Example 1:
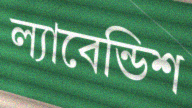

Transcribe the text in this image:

ল্যাবেন্ডিশ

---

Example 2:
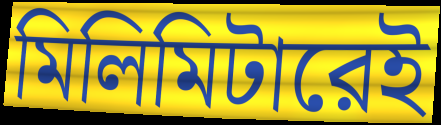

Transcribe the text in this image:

মিলিমিটারেই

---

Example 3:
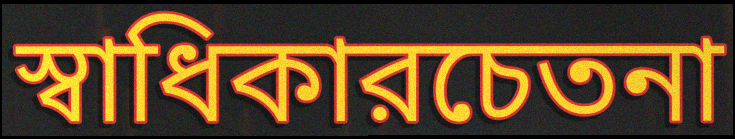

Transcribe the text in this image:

স্বাধিকারচেতনা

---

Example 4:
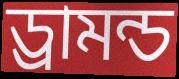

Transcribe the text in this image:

ড্রামন্ড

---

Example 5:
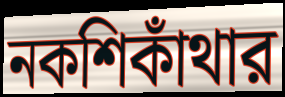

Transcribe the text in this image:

নকশিকাঁথার